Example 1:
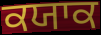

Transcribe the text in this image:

ਕਯਾਕ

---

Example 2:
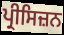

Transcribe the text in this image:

ਪ੍ਰੀਸਿਜ਼ਨ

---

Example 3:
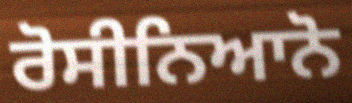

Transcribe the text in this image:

ਰੋਸੀਨਿਆਨੋ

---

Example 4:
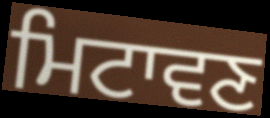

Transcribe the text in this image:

ਮਿਟਾਵਣ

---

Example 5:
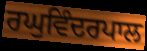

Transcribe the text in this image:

ਰਘੁਵਿੰਦਰਪਾਲ